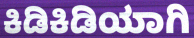
ಕಿಡಿಕಿಡಿಯಾಗಿ